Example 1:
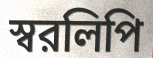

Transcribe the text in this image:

স্বরলিপি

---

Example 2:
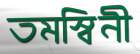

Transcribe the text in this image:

তমস্বিনী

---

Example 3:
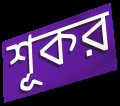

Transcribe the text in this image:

শূকর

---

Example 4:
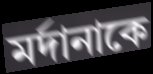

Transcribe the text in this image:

মর্দানাকে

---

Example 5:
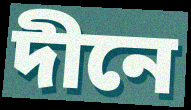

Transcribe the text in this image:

দীনে